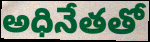
అధినేతతో